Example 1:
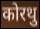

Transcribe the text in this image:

कोरथु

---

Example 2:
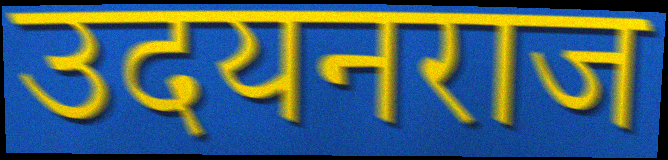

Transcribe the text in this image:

उदयनराज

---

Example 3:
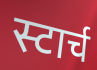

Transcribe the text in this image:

स्टार्च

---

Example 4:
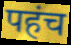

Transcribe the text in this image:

पहंच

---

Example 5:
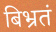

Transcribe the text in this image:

बिभ्रतं